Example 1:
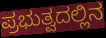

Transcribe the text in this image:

ಪ್ರಭುತ್ವದಲ್ಲಿನ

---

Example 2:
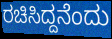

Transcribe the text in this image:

ರಚಿಸಿದ್ದನೆಂದು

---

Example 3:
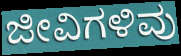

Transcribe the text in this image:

ಜೀವಿಗಳಿವು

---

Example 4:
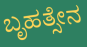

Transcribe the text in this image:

ಬೃಹತ್ಸೇನ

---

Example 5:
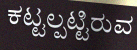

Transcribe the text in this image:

ಕಟ್ಟಲ್ಪಟ್ಟಿರುವ